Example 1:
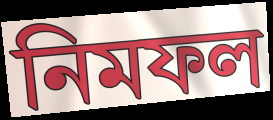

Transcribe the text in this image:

নিমফল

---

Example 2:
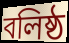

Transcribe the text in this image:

বলিষ্ঠ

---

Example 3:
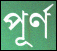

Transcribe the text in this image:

পূর্ণ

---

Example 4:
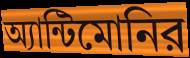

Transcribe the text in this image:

অ্যান্টিমোনির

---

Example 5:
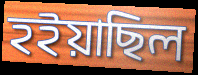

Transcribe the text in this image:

হইয়াছিল